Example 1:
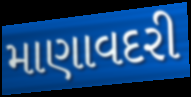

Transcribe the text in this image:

માણાવદરી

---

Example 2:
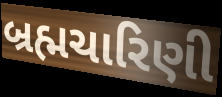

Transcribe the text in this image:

બ્રહ્મચારિણી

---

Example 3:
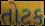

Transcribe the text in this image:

તોટક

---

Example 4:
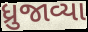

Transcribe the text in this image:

ધ્રુજાવ્યા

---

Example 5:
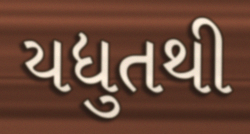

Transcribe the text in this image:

યદ્યુતથી